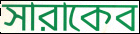
সারাকেব